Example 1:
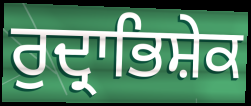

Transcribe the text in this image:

ਰੁਦ੍ਰਾਭਿਸ਼ੇਕ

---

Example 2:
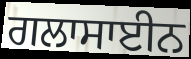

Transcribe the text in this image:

ਗਲਾਸਾਈਨ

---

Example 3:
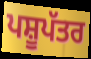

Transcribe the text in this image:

ਪਸ਼ੂਪੱਤਰ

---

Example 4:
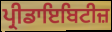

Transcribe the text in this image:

ਪ੍ਰੀਡਾਇਬਿਟੀਜ਼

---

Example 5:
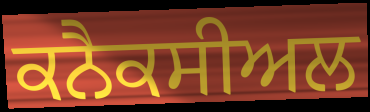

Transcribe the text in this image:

ਕਨੈਕਸੀਅਲ